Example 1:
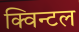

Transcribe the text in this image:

क्विन्टल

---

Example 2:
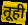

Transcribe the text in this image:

तूही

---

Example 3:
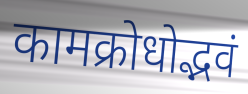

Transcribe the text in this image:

कामक्रोधोद्भवं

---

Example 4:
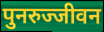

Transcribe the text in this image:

पुनरुज्जीवन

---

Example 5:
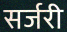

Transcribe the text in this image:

सर्जरी